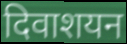
दिवाशयन